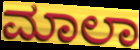
ಮಾಲಾ